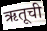
ऋतूची